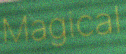
Magical